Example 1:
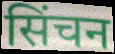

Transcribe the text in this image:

सिंचन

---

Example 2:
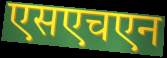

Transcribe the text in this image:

एसएचएन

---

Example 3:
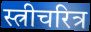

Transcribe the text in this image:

स्त्रीचरित्र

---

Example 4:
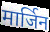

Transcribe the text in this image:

मार्जिन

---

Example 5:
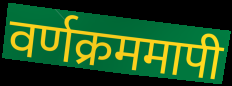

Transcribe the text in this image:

वर्णक्रममापी